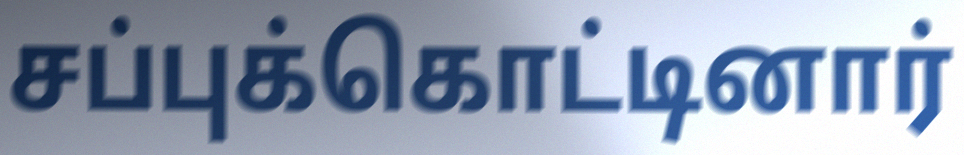
சப்புக்கொட்டினார்